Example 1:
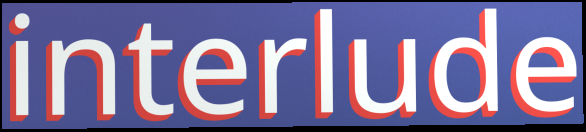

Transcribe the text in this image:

interlude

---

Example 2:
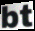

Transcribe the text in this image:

bt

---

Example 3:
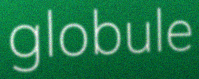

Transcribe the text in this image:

globule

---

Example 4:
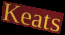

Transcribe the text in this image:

Keats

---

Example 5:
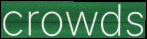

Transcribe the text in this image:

crowds